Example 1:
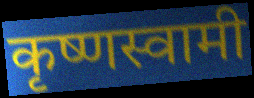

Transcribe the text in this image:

कृष्णस्वामी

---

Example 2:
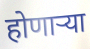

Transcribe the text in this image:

होणार्‍या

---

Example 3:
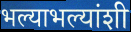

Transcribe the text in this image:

भल्याभल्यांशी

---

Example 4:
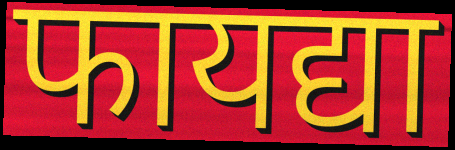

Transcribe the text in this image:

फायद्या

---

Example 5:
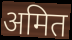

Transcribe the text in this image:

अमित